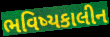
ભવિષ્યકાલીન